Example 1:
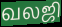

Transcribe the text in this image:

வலஜி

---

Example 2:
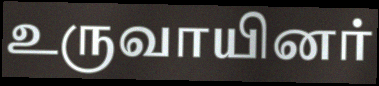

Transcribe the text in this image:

உருவாயினர்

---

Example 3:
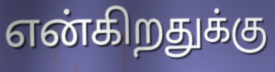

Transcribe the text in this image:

என்கிறதுக்கு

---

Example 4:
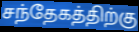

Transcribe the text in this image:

சந்தேகத்திற்கு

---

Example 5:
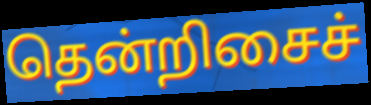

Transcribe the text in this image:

தென்றிசைச்